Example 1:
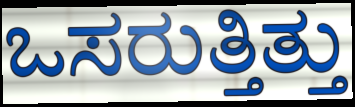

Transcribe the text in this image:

ಒಸರುತ್ತಿತ್ತು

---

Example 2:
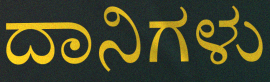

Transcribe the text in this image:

ದಾನಿಗಳು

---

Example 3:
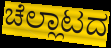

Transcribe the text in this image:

ಚೆಲ್ಲಾಟದ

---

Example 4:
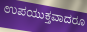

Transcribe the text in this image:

ಉಪಯುಕ್ತವಾದರೂ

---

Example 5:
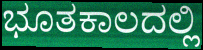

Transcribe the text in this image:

ಭೂತಕಾಲದಲ್ಲಿ